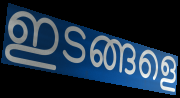
ഇടങ്ങളെ